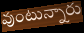
వుంటున్నారు